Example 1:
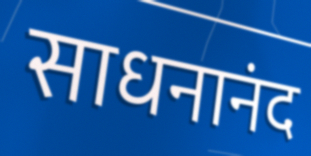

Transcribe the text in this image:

साधनानंद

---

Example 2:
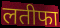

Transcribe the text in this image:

लतीफा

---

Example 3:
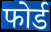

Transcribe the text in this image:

फोर्ड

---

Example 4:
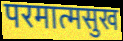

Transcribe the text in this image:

परमात्मसुख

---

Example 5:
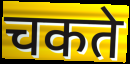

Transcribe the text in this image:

चकते